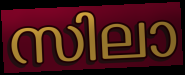
സിലാ